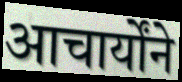
आचार्योंने